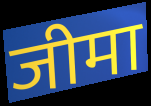
जीमा